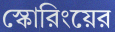
স্কোরিংয়ের